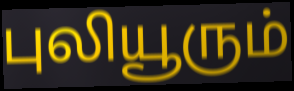
புலியூரும்